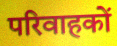
परिवाहकों